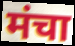
मंचा